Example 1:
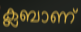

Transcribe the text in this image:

ക്ലബാണ്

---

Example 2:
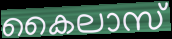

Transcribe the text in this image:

കൈലാസ്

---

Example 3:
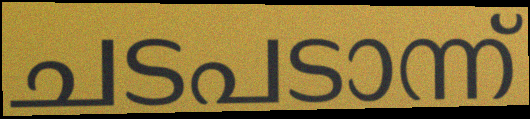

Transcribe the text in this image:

ചടപടാന്ന്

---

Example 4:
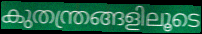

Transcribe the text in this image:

കുതന്ത്രങ്ങളിലൂടെ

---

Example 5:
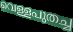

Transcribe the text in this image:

വെള്ളപുതച്ച